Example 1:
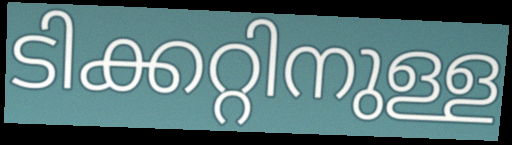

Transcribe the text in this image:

ടിക്കറ്റിനുള്ള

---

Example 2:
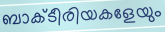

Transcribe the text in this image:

ബാക്ടീരിയകളേയും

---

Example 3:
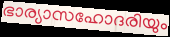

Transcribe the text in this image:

ഭാര്യാസഹോദരിയും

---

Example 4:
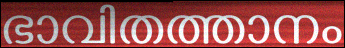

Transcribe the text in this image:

ഭാവിതത്താനം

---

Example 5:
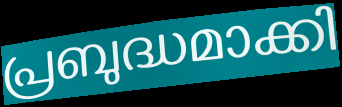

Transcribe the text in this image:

പ്രബുദ്ധമാക്കി